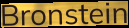
Bronstein